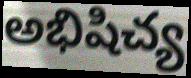
అభిషిచ్య